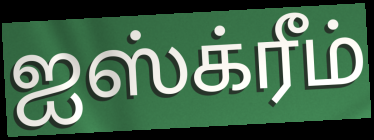
ஐஸ்க்ரீம்